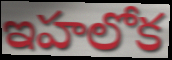
ఇహలోక